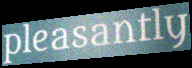
pleasantly